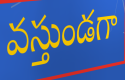
వస్తుండగా